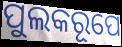
ପୁଲକରୂପେ